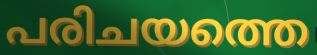
പരിചയത്തെ